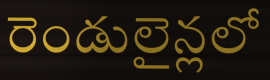
రెండులైన్లలో